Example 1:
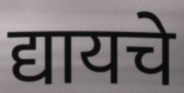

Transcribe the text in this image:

द्यायचे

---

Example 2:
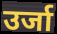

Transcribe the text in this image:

उर्जा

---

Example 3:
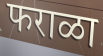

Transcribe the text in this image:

फराळा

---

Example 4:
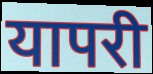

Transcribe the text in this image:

यापरी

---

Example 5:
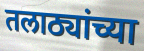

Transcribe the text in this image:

तलाठ्यांच्या